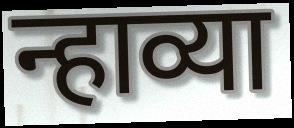
न्हाव्या